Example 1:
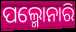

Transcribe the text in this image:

ପଲ୍ମୋନାରି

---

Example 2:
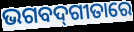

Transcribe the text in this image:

ଭଗବଦ୍‌ଗୀତାରେ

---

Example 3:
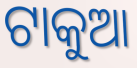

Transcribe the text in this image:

ଟାକୁଆ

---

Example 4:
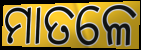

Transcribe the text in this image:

ମାତଳେ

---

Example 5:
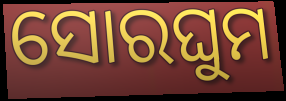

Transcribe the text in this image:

ସୋରଘୁମ